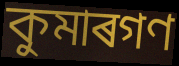
কুমাৰগণ